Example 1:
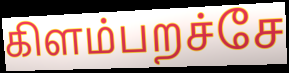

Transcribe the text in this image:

கிளம்பறச்சே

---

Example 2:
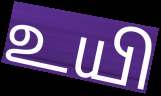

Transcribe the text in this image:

உயி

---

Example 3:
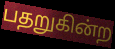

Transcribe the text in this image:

பதறுகின்ற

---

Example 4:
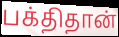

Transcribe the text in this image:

பக்திதான்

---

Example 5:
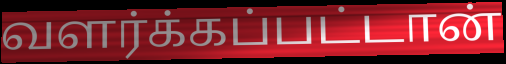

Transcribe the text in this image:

வளர்க்கப்பட்டான்